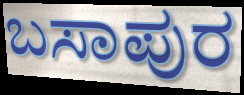
ಬಸಾಪುರ